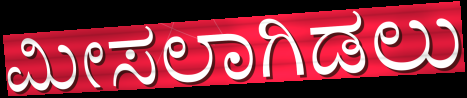
ಮೀಸಲಾಗಿಡಲು